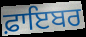
ਫ਼ਾਇਬਰ